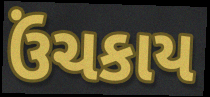
ઉંચકાય